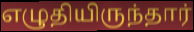
எழுதியிருந்தார்